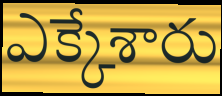
ఎక్కేశారు